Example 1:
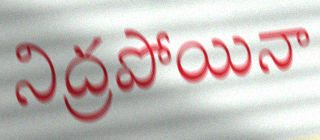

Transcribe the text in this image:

నిద్రపోయినా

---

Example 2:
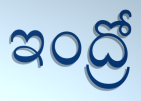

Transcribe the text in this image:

ఇంద్రో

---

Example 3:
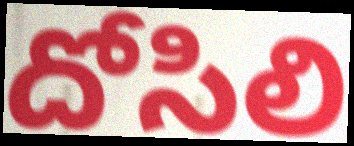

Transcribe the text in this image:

దోసిలి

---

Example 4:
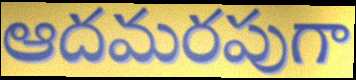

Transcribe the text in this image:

ఆదమరపుగా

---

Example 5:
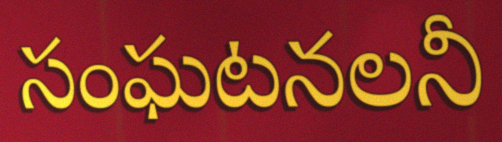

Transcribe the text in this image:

సంఘటనలనీ